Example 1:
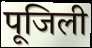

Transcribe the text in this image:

पूजिली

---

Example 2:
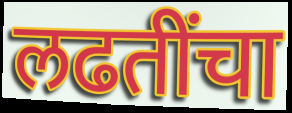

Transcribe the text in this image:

लढतींचा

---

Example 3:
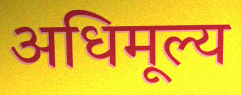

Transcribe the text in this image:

अधिमूल्य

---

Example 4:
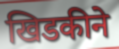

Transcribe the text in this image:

खिडकीने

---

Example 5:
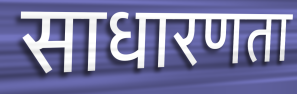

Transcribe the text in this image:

साधारणता